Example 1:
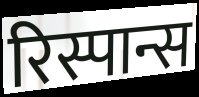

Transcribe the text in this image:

रिस्पान्स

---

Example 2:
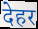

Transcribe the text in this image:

देहर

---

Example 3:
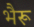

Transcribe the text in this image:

भैरू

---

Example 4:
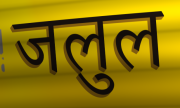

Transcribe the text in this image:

जलुल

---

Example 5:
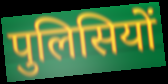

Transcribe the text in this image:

पुलिसियों